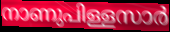
നാണുപിള്ളസാർ